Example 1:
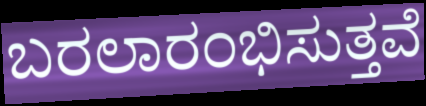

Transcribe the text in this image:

ಬರಲಾರಂಭಿಸುತ್ತವೆ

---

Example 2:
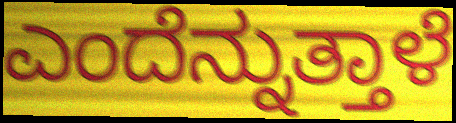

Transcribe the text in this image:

ಎಂದೆನ್ನುತ್ತಾಳೆ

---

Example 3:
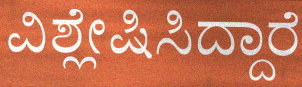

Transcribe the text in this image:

ವಿಶ್ಲೇಷಿಸಿದ್ದಾರೆ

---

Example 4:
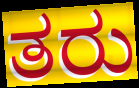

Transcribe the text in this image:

ತರು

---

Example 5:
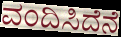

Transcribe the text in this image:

ವಂದಿಸಿದೆನೆ